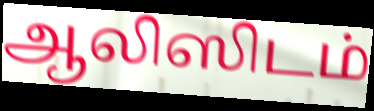
ஆலிஸிடம்